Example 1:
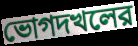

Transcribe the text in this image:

ভোগদখলের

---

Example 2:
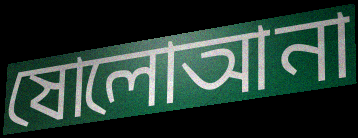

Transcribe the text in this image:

ষোলোআনা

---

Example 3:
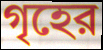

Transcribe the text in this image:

গৃহের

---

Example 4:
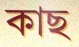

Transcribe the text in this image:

কাছ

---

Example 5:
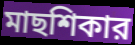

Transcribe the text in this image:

মাছশিকার